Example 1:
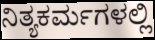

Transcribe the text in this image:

ನಿತ್ಯಕರ್ಮಗಳಲ್ಲಿ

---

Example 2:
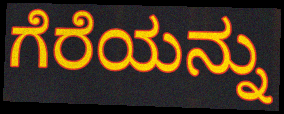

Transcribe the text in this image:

ಗೆರೆಯನ್ನು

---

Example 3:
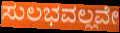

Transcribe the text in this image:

ಸುಲಭವಲ್ಲವೇ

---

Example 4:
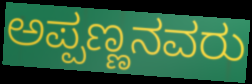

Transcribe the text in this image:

ಅಪ್ಪಣ್ಣನವರು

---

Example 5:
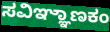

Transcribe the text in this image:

ಸವಿಞ್ಞಾಣಕಂ